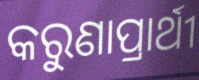
କରୁଣାପ୍ରାର୍ଥୀ